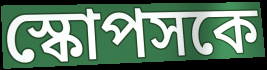
স্কোপসকে